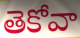
తెకోవా